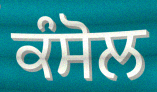
ਕੰਸੋਲ